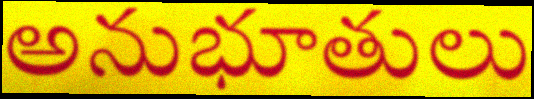
అనుభూతులు